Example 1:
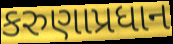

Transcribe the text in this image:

કરુણાપ્રધાન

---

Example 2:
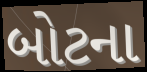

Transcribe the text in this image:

બોટના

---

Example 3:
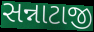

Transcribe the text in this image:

સન્નાટાજી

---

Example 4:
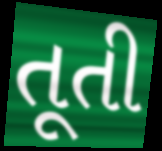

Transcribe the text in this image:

તૂતી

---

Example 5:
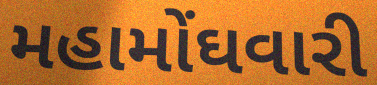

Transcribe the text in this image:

મહામોંઘવારી